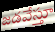
జడవేస్తూ